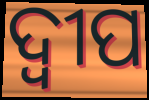
ଦ୍ବୀପ